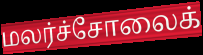
மலர்ச்சோலைக்